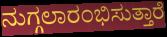
ನುಗ್ಗಲಾರಂಭಿಸುತ್ತಾರೆ